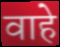
वाहे